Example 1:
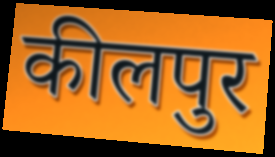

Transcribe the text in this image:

कीलपुर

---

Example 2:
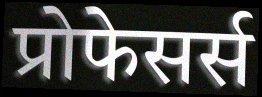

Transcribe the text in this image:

प्रोफेसर्स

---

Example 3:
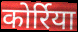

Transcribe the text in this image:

कोर्रिया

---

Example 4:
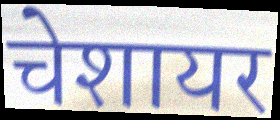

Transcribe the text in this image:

चेशायर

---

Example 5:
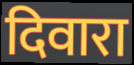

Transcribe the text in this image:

दिवारा